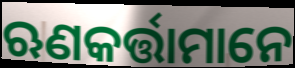
ଋଣକର୍ତ୍ତାମାନେ